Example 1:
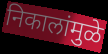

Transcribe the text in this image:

निकालांमुळे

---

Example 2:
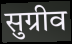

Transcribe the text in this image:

सुग्रीव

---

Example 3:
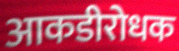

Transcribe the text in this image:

आकडीरोधक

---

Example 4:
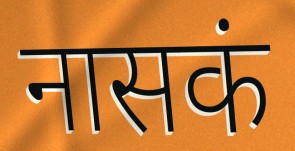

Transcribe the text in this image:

नासकं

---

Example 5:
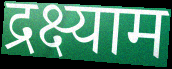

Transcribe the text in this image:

द्रक्ष्याम